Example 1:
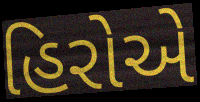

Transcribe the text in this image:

હિરોએ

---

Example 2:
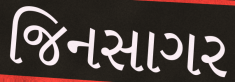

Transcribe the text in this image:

જિનસાગર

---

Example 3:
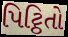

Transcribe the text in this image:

પિટ્ઠિતો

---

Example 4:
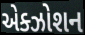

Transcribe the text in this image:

એક્ઝોશન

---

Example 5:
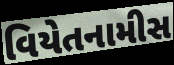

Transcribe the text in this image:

વિયેતનામીસ